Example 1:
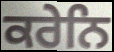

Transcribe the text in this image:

ਕਰੇਨਿ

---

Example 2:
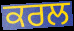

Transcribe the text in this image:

ਕਰਲ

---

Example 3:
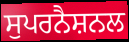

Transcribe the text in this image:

ਸੁਪਰਨੈਸ਼ਨਲ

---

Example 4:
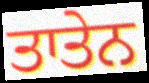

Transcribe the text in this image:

ਤਾਤੇਨ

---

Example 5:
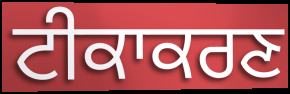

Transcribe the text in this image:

ਟੀਕਾਕਰਣ